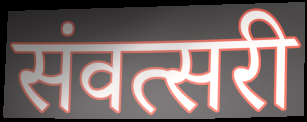
संवत्सरी